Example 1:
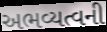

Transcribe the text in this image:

અભવ્યત્વની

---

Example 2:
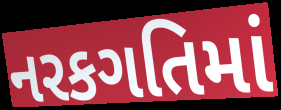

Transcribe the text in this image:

નરકગતિમાં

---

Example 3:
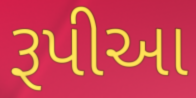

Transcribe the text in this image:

રૂપીઆ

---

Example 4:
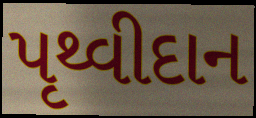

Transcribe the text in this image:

પૃથ્વીદાન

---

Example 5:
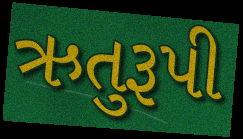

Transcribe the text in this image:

ઋતુરૂપી